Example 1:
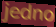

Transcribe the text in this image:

jedno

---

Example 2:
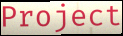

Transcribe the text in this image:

Project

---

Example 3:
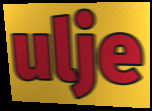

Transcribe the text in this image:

ulje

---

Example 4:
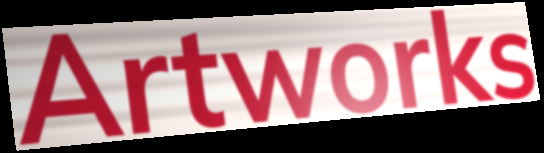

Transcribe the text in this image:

Artworks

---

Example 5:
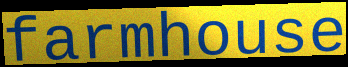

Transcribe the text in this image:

farmhouse